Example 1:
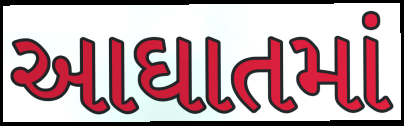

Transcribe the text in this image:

આઘાતમાં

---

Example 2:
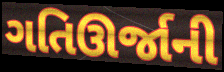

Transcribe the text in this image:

ગતિઊર્જાની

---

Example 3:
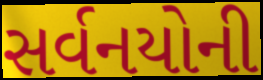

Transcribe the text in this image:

સર્વનયોની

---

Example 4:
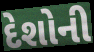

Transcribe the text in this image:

દેશોની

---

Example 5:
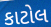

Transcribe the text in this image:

કાટોલ